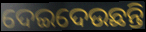
ଦେଇଦେଉଛନ୍ତି